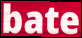
bate